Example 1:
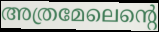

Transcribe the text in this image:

അത്രമേലെന്റെ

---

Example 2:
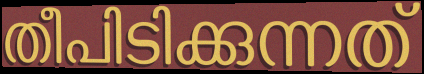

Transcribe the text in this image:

തീപിടിക്കുന്നത്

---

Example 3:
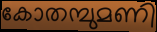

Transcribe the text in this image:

കോതമ്പുമണി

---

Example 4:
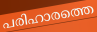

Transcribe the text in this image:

പരിഹാരത്തെ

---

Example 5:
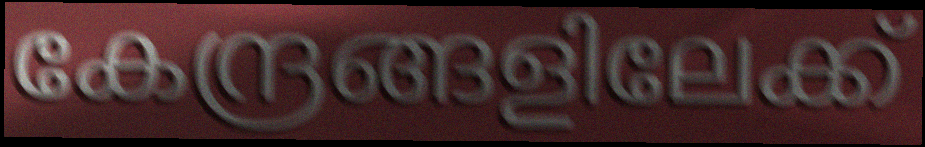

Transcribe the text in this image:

കേന്ദ്രങ്ങളിലേക്ക്